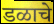
डळाचे